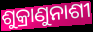
ଶୁକ୍ରାଣୁନାଶୀ